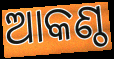
ଆକଣ୍ଠ